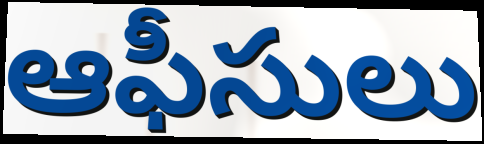
ఆఫీసులు